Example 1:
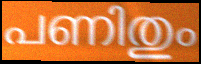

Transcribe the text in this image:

പണിതും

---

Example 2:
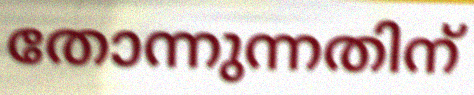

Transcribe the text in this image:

തോന്നുന്നതിന്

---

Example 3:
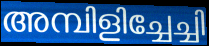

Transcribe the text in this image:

അമ്പിളിച്ചേച്ചി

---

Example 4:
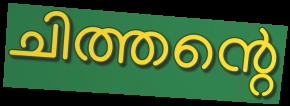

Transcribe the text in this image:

ചിത്തന്റെ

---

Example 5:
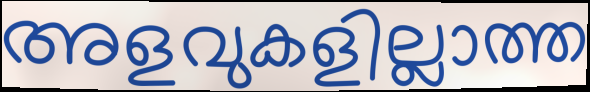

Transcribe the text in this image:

അളവുകളില്ലാത്ത